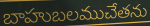
బాహుబలముచేతను